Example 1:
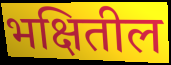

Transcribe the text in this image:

भक्षितील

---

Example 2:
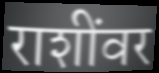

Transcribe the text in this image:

राशींवर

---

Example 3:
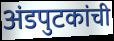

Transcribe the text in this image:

अंडपुटकांची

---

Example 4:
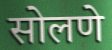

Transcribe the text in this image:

सोलणे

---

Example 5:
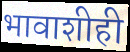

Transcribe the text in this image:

भावाशीही